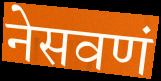
नेसवणं